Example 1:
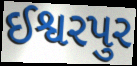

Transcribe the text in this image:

ઈશ્વરપુર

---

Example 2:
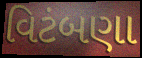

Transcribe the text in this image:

વિટંબણા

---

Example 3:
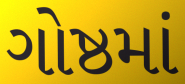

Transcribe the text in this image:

ગોષ્ઠમાં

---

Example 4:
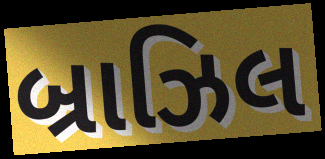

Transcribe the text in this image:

બ્રાઝિલ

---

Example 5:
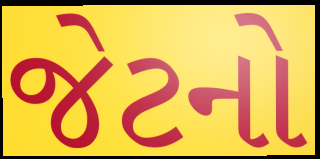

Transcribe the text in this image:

જેટનો